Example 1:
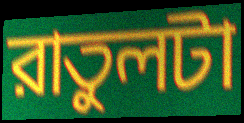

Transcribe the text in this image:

রাতুলটা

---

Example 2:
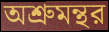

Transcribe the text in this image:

অশ্রুমন্থর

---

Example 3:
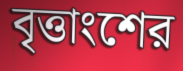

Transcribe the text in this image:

বৃত্তাংশের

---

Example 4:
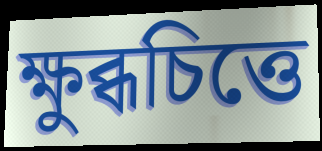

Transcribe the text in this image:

ক্ষুব্ধচিত্তে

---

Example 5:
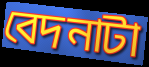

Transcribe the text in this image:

বেদনাটা